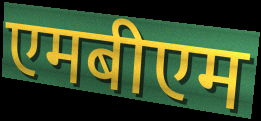
एमबीएम